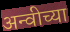
अन्वीच्या